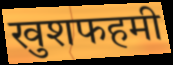
खुशफहमी